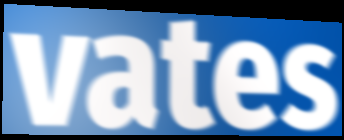
vates